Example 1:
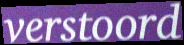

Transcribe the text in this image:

verstoord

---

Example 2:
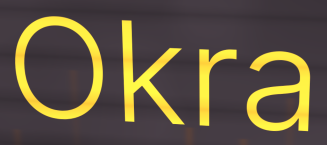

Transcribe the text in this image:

Okra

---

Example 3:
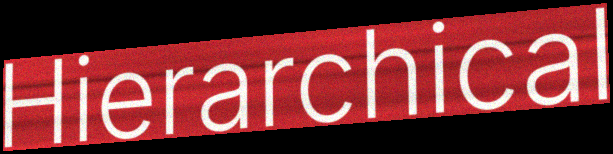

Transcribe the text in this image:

Hierarchical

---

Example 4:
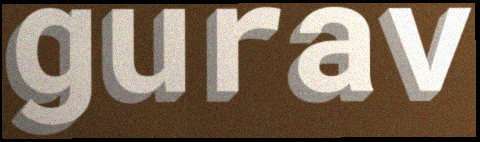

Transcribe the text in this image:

gurav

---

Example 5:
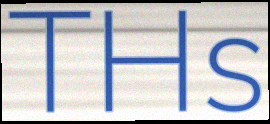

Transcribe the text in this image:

THs